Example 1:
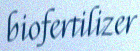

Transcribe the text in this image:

biofertilizer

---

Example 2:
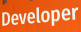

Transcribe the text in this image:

Developer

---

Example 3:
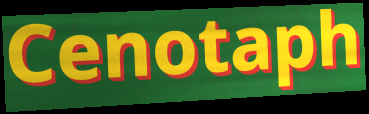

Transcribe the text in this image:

Cenotaph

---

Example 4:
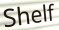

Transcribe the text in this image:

Shelf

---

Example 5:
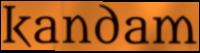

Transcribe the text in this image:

kandam